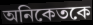
অনিকেতকে